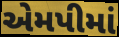
એમપીમાં